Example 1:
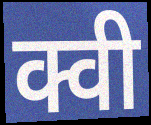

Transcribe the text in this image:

क्वी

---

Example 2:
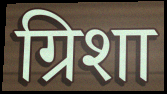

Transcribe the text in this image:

ग्रिशा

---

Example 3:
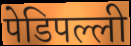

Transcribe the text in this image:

पेडिपल्ली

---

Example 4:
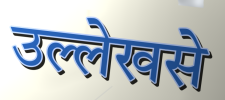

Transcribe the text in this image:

उल्लेखसे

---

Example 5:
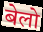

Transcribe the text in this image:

बेलो